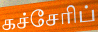
கச்சேரிப்